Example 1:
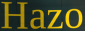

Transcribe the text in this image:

Hazo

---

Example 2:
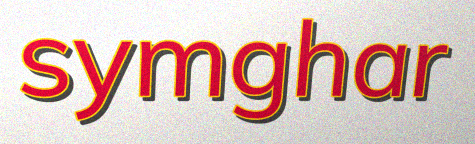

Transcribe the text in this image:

symghar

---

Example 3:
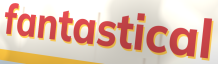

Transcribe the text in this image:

fantastical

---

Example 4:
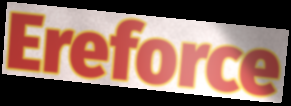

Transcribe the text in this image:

Ereforce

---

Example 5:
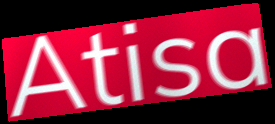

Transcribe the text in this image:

Atisa